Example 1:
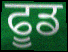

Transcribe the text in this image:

ਫੂਡ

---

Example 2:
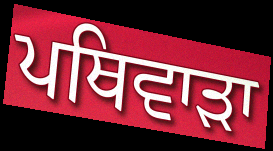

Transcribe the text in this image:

ਪਥਿਵਾੜਾ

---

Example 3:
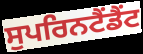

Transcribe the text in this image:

ਸੁਪਰਿਨਟੈਂਡੈਂਟ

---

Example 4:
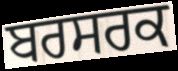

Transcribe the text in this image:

ਬਰਸਰਕ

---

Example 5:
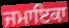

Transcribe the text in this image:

ਜਮਾਇਕਾ